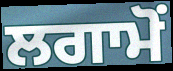
ਲਗਾਮੋਂ